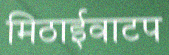
मिठाईवाटप